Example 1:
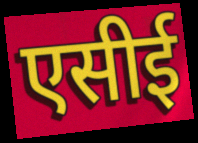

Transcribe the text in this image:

एसीई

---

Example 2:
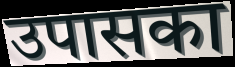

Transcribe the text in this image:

उपासका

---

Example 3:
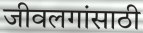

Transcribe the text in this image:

जीवलगांसाठी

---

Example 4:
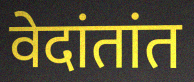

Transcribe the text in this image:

वेदांतांत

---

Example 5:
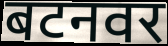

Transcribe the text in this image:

बटनवर